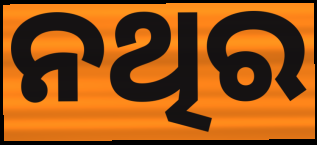
ନଥିର